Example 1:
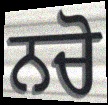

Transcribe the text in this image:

ਨਚੋ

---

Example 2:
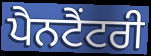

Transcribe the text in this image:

ਪੈਨਟੈਂਟਰੀ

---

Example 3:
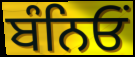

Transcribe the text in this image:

ਬੰਨਿਓਂ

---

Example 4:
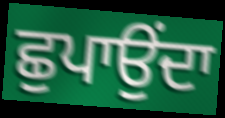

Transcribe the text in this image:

ਛੁਪਾਉਂਦਾ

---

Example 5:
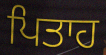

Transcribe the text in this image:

ਪਿਤਾਹ